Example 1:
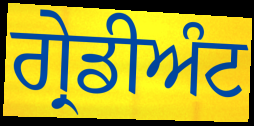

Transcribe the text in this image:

ਗ੍ਰੇਡੀਅੰਟ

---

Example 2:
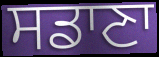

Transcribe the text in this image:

ਸਡਾਣਾ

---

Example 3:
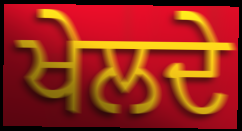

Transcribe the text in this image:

ਖੇਲਦੇ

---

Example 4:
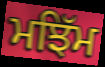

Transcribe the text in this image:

ਮਝਿੱਮ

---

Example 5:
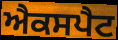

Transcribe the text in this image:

ਐਕਸਪੈਟ